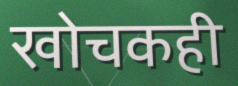
खोचकही